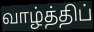
வாழ்த்திப்